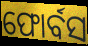
ଫୋର୍ବସ